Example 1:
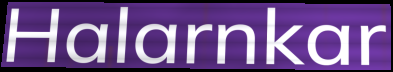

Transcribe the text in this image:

Halarnkar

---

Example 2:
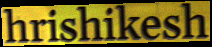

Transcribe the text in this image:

hrishikesh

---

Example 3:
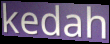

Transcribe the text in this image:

kedah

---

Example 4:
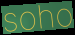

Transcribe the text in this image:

soho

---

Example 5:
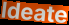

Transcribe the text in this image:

Ideate